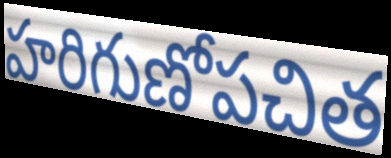
హరిగుణోపచిత